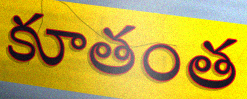
కూతంత